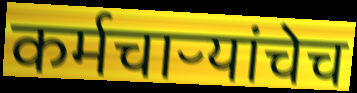
कर्मचाऱ्यांचेच